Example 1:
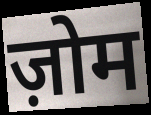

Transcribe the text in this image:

ज़ोम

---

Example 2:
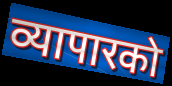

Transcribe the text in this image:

व्यापारको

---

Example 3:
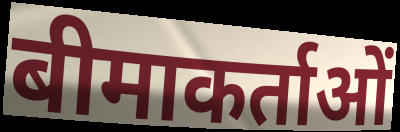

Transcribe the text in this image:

बीमाकर्ताओं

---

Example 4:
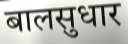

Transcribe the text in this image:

बालसुधार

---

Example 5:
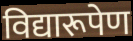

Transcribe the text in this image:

विद्यारूपेण